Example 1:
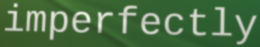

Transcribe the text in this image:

imperfectly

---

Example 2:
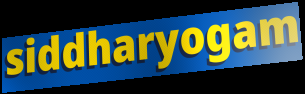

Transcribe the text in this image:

siddharyogam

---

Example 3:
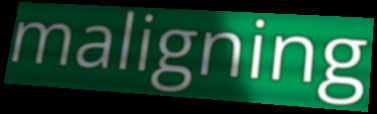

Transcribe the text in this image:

maligning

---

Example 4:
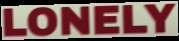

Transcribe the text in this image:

LONELY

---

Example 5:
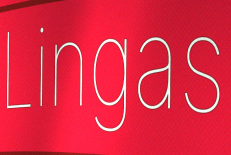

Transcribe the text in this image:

Lingas